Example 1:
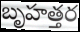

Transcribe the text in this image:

బృహత్తర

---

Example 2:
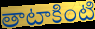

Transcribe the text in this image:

తాటాకింటి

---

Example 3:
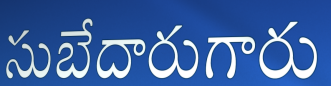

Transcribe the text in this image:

సుబేదారుగారు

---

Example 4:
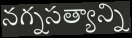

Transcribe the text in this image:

నగ్నసత్యాన్ని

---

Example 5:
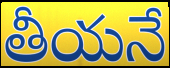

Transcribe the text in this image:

తీయనే